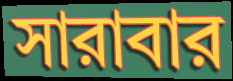
সারাবার